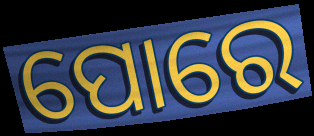
ପୋରେ